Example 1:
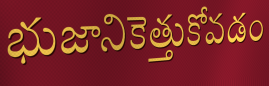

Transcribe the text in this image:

భుజానికెత్తుకోవడం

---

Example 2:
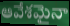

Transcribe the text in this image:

ఆవేశమైనా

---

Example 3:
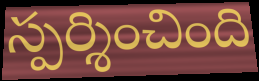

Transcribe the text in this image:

స్పర్శించింది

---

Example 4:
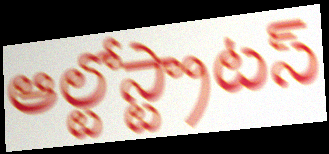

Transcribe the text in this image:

ఆల్టోస్ట్రాటస్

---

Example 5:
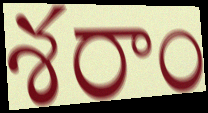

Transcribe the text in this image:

శరాం